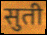
सुती